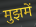
मुझमें